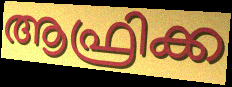
ആഫ്രിക്ക